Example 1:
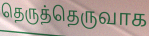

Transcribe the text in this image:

தெருத்தெருவாக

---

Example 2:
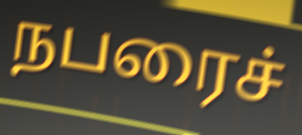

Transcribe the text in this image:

நபரைச்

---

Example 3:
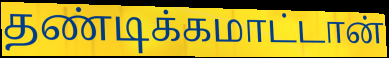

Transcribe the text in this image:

தண்டிக்கமாட்டான்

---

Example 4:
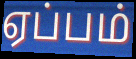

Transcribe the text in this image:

ஏப்பம்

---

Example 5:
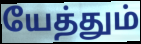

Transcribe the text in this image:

யேத்தும்